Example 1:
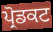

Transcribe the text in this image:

ਪ੍ਰੋਡਕਟ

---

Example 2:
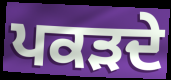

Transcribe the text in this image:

ਪਕੜਦੇ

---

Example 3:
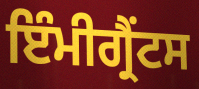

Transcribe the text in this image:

ਇੰਮੀਗ੍ਰੈਂਟਸ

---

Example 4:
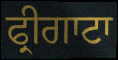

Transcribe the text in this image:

ਫ੍ਰੀਗਾਟਾ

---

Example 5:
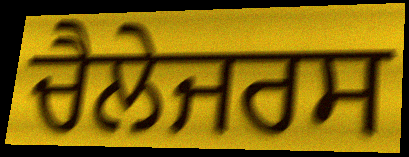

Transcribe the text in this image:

ਚੈਲੇਜਰਸ